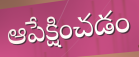
ఆపేక్షించడం